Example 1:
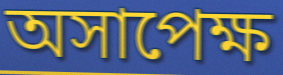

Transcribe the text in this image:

অসাপেক্ষ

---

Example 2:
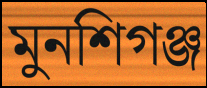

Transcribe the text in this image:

মুনশিগঞ্জ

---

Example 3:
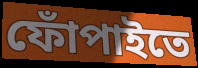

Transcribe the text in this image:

ফোঁপাইতে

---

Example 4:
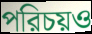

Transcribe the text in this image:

পরিচয়ও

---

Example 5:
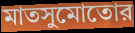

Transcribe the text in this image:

মাতসুমোতোর